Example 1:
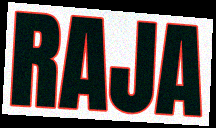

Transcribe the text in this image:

RAJA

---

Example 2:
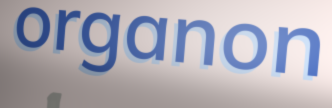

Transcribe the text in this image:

organon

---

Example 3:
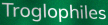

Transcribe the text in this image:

Troglophiles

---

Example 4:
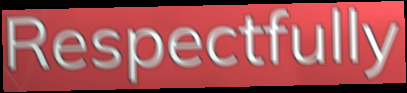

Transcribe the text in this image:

Respectfully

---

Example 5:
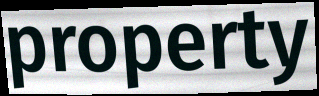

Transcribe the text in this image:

property